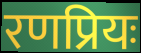
रणप्रियः